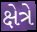
ક્ષેત્રે